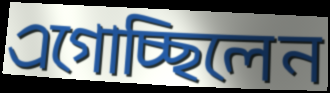
এগোচ্ছিলেন